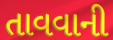
તાવવાની